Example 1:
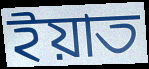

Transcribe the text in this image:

ইয়াত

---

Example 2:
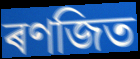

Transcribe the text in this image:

ৰণজিত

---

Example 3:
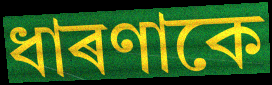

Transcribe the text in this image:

ধাৰণাকে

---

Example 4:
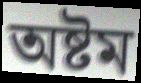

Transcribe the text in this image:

অষ্টম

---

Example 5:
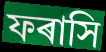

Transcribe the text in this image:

ফৰাসি